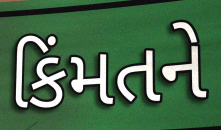
કિંમતને